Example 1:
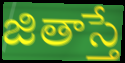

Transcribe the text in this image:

జితాస్తే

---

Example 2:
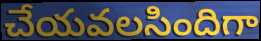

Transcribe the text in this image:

చేయవలసిందిగా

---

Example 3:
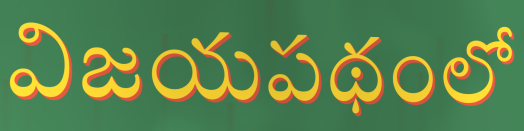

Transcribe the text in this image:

విజయపథంలో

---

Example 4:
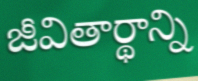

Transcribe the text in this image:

జీవితార్థాన్ని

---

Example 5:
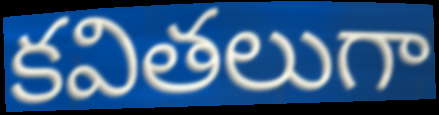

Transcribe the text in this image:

కవితలుగా